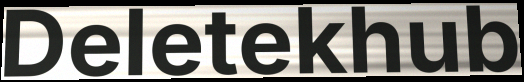
Deletekhub